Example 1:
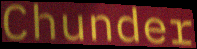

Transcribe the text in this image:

Chunder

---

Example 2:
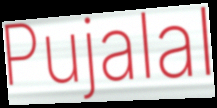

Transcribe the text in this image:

Pujalal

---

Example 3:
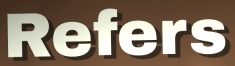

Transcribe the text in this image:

Refers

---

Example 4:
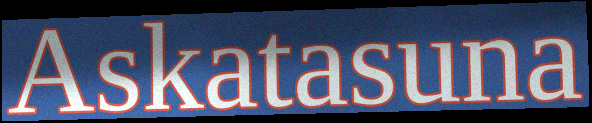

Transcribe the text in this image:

Askatasuna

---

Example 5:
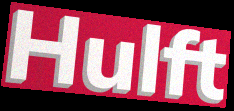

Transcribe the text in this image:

Hulft